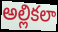
అల్లికలా